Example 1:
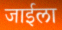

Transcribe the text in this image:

जाईला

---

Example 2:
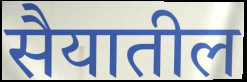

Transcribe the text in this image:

सैयातील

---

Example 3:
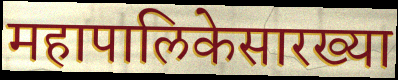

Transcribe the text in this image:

महापालिकेसारख्या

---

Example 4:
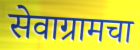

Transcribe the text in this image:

सेवाग्रामचा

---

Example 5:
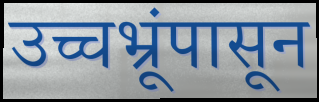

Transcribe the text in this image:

उच्चभ्रूंपासून